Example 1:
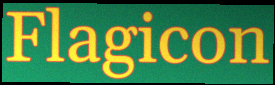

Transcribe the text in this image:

Flagicon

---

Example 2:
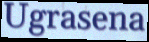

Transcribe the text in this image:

Ugrasena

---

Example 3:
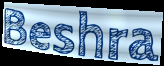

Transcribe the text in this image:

Beshra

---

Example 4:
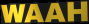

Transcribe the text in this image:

WAAH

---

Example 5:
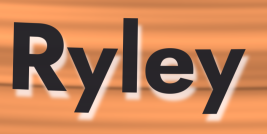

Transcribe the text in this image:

Ryley